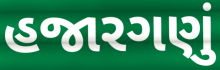
હજારગણું